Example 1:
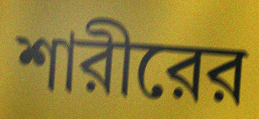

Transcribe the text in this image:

শারীরের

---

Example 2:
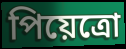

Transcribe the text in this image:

পিয়েত্রো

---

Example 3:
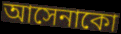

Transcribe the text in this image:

আসেনাকো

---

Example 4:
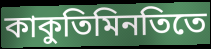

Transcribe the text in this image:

কাকুতিমিনতিতে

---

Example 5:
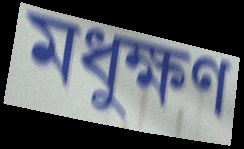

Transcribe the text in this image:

মধুক্ষণ